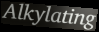
Alkylating